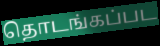
தொடங்கப்பட